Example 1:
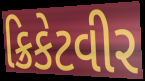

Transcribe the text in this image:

ક્રિકેટવીર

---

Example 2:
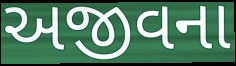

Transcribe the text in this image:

અજીવના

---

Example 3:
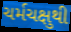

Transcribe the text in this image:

ચર્મચક્ષુથી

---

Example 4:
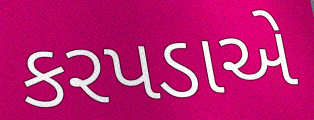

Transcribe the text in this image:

કરપડાએ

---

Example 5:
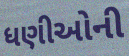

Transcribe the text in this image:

ધણીઓની